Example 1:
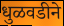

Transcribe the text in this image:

धुळवडीने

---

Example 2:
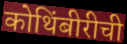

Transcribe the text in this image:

कोथिंबीरीची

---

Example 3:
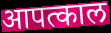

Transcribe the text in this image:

आपत्काल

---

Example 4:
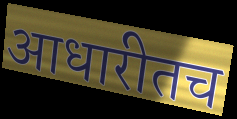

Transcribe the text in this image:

आधारीतच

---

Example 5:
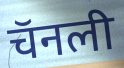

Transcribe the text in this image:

चॅनली